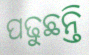
ପଢୁଛନ୍ତି